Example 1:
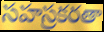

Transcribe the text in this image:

సహస్రకరతా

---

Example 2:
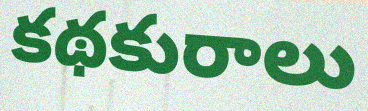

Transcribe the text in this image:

కథకురాలు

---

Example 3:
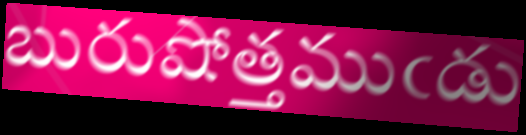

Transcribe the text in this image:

బురుషోత్తముఁడు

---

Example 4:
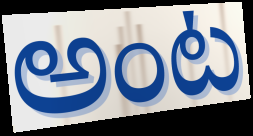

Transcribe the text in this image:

అంట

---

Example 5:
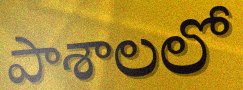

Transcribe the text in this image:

పాశాలలో